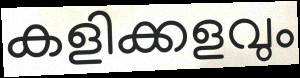
കളിക്കളവും